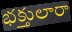
భక్తులారా